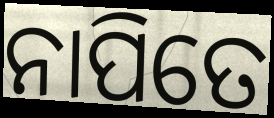
ନାପିତେ